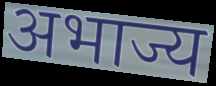
अभाज्य